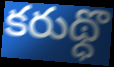
కరుథ్ధొ